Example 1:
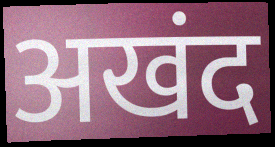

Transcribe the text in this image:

अखंद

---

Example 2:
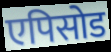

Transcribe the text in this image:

एपिसोड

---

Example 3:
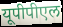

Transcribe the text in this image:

यूपीपीएल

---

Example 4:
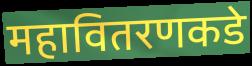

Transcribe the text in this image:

महावितरणकडे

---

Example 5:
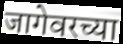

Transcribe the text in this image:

जागेवरच्या